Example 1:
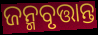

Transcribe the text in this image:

ଜନ୍ମବୃତ୍ତାନ୍ତ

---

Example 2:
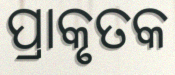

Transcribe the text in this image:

ପ୍ରାକୃତକ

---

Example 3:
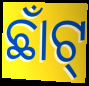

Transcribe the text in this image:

ଛାଁଟ୍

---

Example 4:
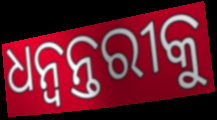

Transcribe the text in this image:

ଧନ୍ବନ୍ତରୀକୁ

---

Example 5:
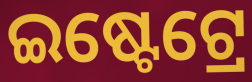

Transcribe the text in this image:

ଇଷ୍ଟେଟ୍ରେ